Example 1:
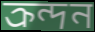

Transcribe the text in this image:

ক্রন্দন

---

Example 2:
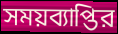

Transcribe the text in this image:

সময়ব্যাপ্তির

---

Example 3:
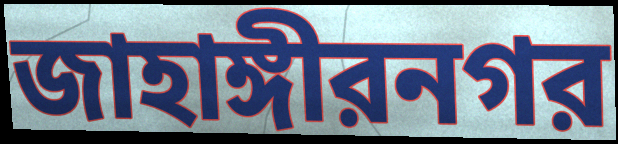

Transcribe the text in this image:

জাহাঙ্গীরনগর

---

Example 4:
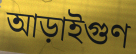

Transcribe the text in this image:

আড়াইগুণ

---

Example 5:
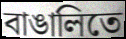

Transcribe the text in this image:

বাঙালিতে